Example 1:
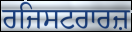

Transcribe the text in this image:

ਰਜਿਸਟਰਾਰਜ਼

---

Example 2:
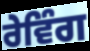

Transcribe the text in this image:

ਰੇਵਿੰਗ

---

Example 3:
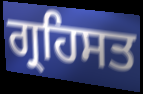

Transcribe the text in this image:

ਗ੍ਰਹਿਸਤ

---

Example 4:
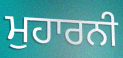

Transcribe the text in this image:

ਮੁਹਾਰਨੀ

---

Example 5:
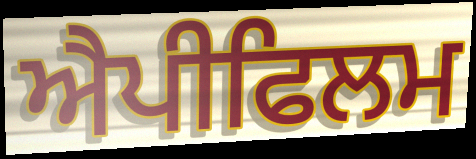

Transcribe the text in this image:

ਐਪੀਫਿਲਮ